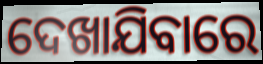
ଦେଖାଯିବାରେ